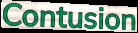
Contusion